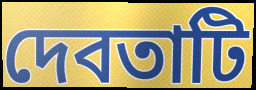
দেবতাটি